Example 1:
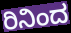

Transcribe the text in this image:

ರಿನಿಂದ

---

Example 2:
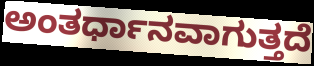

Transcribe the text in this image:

ಅಂತರ್ಧಾನವಾಗುತ್ತದೆ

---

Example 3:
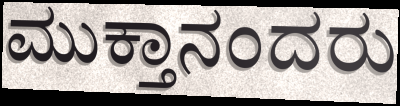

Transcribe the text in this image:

ಮುಕ್ತಾನಂದರು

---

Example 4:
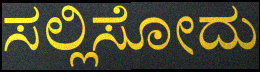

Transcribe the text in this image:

ಸಲ್ಲಿಸೋದು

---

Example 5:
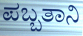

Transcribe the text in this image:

ಪಬ್ಬತಾನಿ